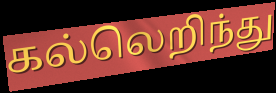
கல்லெறிந்து